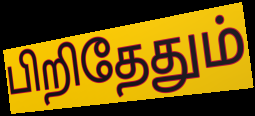
பிறிதேதும்